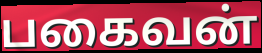
பகைவன்